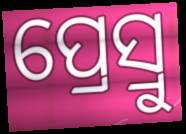
ପ୍ରେସ୍ରୁ